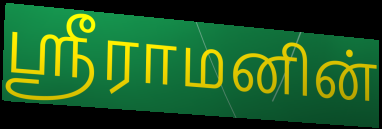
ஸ்ரீராமனின்